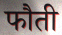
फौती